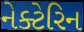
નેક્ટેરિન